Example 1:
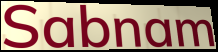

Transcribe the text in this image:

Sabnam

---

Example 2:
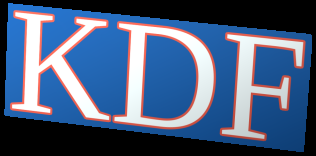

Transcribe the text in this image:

KDF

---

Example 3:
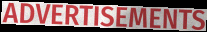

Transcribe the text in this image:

ADVERTISEMENTS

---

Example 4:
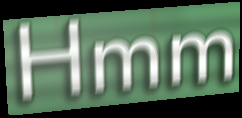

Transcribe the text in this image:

Hmm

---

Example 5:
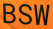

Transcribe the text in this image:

BSW